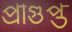
প্রাগুপ্ত